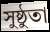
সুষ্ঠুতা